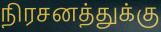
நிரசனத்துக்கு